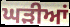
ਘੜੀਆਂ